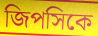
জিপসিকে